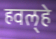
हवल्हे